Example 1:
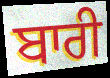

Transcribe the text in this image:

ਬਾਰੀ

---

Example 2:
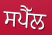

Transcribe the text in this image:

ਸਪੈੱਲ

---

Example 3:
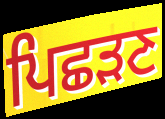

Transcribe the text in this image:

ਪਿਛੜਣ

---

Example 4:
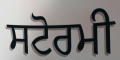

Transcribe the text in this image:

ਸਟੋਰਮੀ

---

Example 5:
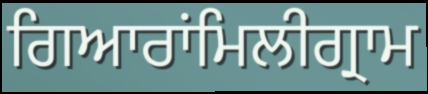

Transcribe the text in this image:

ਗਿਆਰਾਂਮਿਲੀਗ੍ਰਾਮ